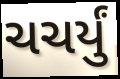
ચચર્યું